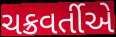
ચક્રવર્તીએ